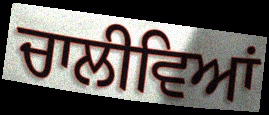
ਚਾਲੀਵਿਆਂ